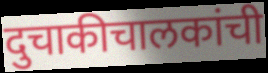
दुचाकीचालकांची